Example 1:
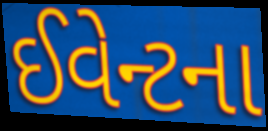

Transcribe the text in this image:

ઈવેન્ટના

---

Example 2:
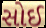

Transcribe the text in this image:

સોઈ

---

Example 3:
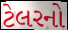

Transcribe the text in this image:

ટેલરનો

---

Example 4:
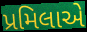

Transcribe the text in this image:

પ્રમિલાએ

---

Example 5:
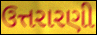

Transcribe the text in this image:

ઉત્તરારણી